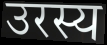
उरस्य